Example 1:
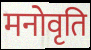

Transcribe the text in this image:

मनोवृति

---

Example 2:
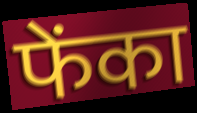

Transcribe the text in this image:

फेंका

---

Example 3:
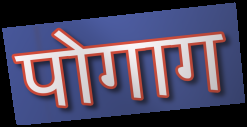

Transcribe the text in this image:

पोगाग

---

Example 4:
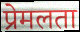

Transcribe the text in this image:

प्रेमलता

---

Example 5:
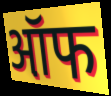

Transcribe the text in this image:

ऑ़फ